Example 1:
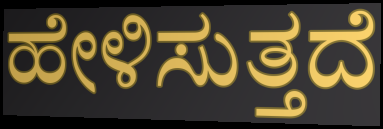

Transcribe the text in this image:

ಹೇಳಿಸುತ್ತದೆ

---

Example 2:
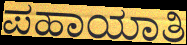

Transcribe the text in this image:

ಪಹಾಯಾತಿ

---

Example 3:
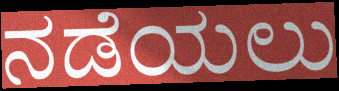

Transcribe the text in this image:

ನಡೆಯಲು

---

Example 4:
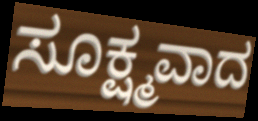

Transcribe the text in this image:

ಸೂಕ್ಷ್ಮವಾದ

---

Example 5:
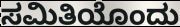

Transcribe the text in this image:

ಸಮಿತಿಯೊಂದು